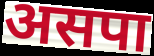
असपा